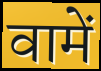
वामें